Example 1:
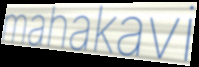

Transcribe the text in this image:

mahakavi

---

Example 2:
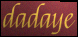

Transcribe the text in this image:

dadaye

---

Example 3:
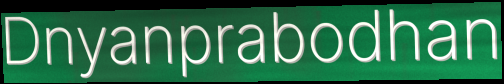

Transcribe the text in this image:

Dnyanprabodhan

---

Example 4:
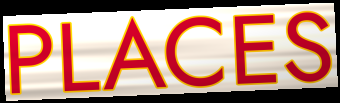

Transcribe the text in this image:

PLACES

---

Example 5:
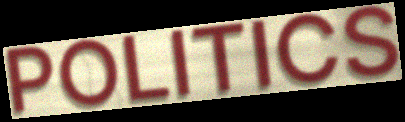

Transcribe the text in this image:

POLITICS